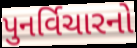
પુનર્વિચારનો